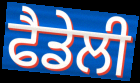
ਫੈਡੇਲੀ